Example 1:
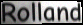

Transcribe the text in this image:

Rolland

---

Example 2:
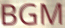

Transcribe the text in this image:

BGM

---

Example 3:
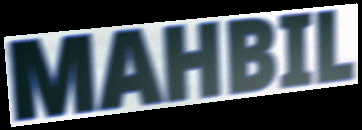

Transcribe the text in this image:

MAHBIL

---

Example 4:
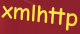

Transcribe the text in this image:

xmlhttp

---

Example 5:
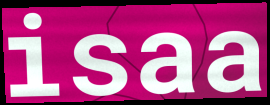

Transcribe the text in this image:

isaa